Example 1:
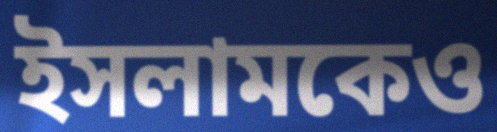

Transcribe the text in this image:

ইসলামকেও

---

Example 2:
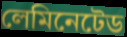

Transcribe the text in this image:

লেমিনেটেড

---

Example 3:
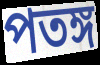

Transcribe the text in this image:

পতঙ্গ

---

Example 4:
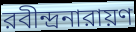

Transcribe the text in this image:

রবীন্দ্রনারায়ণ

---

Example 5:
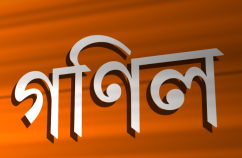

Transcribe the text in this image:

গণিল